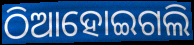
ଠିଆହୋଇଗଲି